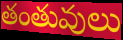
తంతువులు